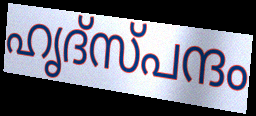
ഹൃദ്സ്പന്ദം